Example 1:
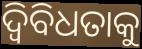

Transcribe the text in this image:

ଦ୍ୱିବିଧତାକୁ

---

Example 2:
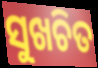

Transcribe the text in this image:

ସୁଖଚିତ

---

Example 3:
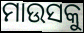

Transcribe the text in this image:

ମାଉସକୁ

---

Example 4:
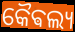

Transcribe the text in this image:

କୈଵଲ୍ୟ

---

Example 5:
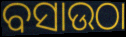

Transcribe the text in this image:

ବସାଉଠା